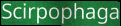
Scirpophaga